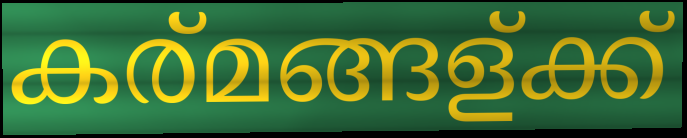
കര്മങ്ങള്ക്ക്